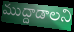
ముద్దాడాలని